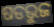
ଷଡଭୁଜ